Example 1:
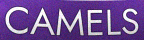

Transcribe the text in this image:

CAMELS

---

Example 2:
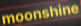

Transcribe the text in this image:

moonshine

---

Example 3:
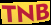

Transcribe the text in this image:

TNB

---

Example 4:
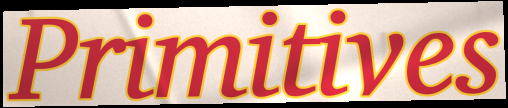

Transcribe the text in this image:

Primitives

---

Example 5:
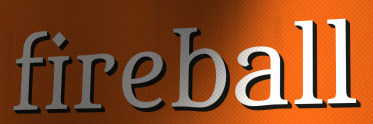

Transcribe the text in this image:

fireball